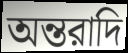
অন্তরাদি